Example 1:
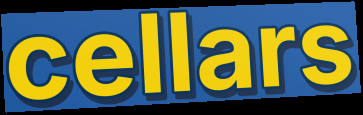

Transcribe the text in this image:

cellars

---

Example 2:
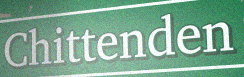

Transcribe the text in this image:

Chittenden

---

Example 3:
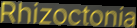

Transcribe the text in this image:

Rhizoctonia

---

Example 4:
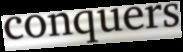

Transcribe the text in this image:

conquers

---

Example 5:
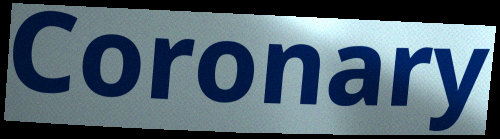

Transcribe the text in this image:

Coronary